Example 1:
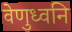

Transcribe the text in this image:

वेणुध्वनि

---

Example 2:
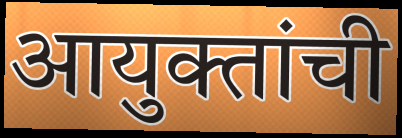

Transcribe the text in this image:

आयुक्तांची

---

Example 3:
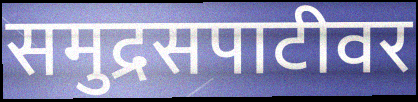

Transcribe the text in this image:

समुद्रसपाटीवर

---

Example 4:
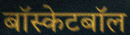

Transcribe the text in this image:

बॉस्केटबॉल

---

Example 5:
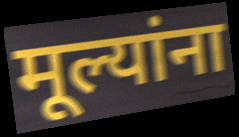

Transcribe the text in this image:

मूल्यांना